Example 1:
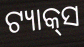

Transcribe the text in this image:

ଟ୍ୟାକ୍‌ସ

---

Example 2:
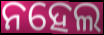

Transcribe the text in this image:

ନହେଲ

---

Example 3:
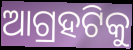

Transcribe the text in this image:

ଆଗ୍ରହଟିକୁ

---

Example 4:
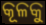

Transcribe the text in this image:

କୂଳକୁ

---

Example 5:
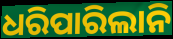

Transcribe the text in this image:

ଧରିପାରିଲାନି